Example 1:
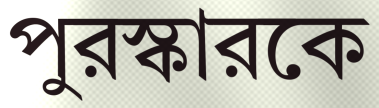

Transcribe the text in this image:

পুরস্কারকে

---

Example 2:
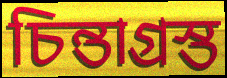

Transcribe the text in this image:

চিন্তাগ্রস্ত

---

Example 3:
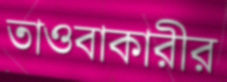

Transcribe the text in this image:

তাওবাকারীর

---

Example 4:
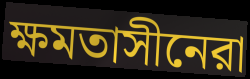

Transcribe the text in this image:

ক্ষমতাসীনেরা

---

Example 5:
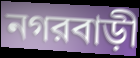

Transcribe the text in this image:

নগরবাড়ী